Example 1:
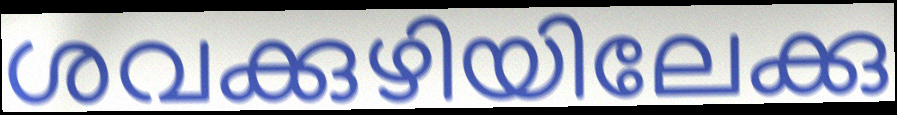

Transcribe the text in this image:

ശവക്കുഴിയിലേക്കു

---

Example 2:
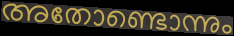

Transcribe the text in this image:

അതോണ്ടൊന്നും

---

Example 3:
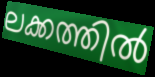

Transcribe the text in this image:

ലക്കത്തിൽ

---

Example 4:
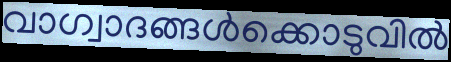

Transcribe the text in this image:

വാഗ്വാദങ്ങൾക്കൊടുവിൽ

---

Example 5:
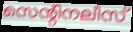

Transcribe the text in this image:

സെന്റിനലീസ്